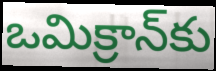
ఒమిక్రాన్‌కు